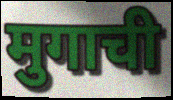
मुगाची